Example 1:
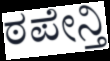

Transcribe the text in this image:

ಠಪೇನ್ತಿ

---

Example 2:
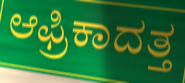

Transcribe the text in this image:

ಆಫ್ರಿಕಾದತ್ತ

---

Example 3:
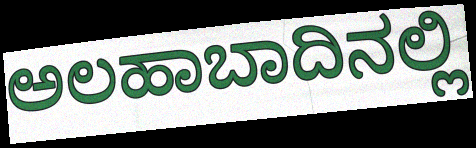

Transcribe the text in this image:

ಅಲಹಾಬಾದಿನಲ್ಲಿ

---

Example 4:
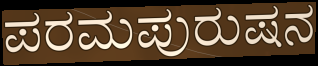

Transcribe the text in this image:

ಪರಮಪುರುಷನ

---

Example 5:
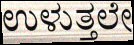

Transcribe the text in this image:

ಉಳುತ್ತಲೇ